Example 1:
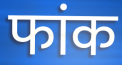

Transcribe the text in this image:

फांक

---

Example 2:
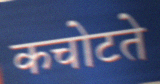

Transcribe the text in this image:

कचोटते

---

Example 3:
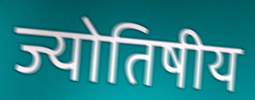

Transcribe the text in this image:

ज्योतिषीय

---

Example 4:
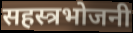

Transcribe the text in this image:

सहस्त्रभोजनी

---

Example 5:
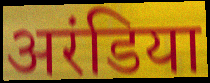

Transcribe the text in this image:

अरंडिया